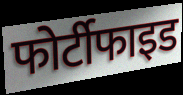
फोर्टीफाइड